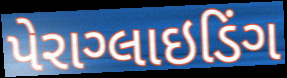
પેરાગ્લાઇડિંગ